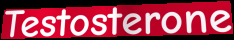
Testosterone